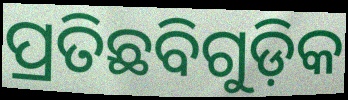
ପ୍ରତିଛବିଗୁଡ଼ିକ